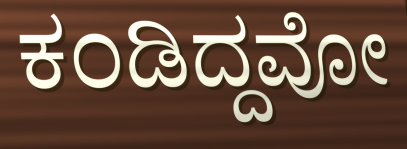
ಕಂಡಿದ್ದವೋ